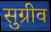
सुग्रीव